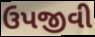
ઉપજીવી